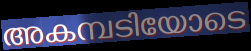
അകമ്പടിയോടെ